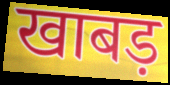
खाबड़